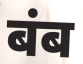
बंब